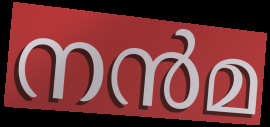
നൻമ